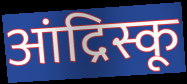
आंद्रिस्कू